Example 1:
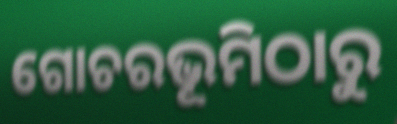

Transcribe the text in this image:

ଗୋଚରଭୂମିଠାରୁ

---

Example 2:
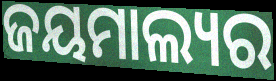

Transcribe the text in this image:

ଜୟମାଲ୍ୟର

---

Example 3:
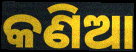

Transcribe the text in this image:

କଣିଆ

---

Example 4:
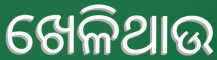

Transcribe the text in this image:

ଖେଳିଥାଉ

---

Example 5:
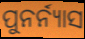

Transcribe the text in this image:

ପୁନର୍ନ୍ୟାସ